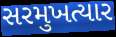
સરમુખત્યાર